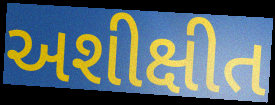
અશીક્ષીત